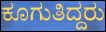
ಕೂಗುತಿದ್ದರು